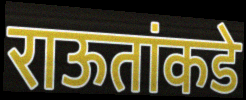
राऊतांकडे